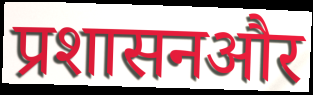
प्रशासनऔर